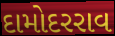
દામોદરરાવ